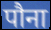
पौना